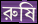
রুষি